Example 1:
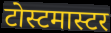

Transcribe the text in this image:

टोस्टमास्टर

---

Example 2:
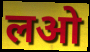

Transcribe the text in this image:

लओ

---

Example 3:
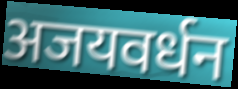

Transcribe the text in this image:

अजयवर्धन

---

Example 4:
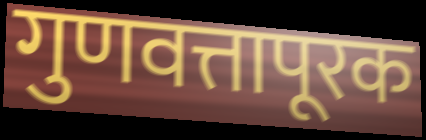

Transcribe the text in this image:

गुणवत्तापूरक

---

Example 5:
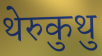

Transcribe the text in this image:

थेरुकुथु